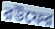
রউফের